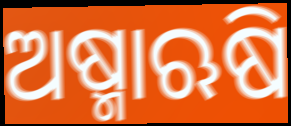
ଅଷ୍ମାଋଷି